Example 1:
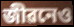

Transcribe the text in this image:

জীৱনেও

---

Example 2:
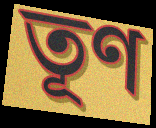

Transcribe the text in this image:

তূণ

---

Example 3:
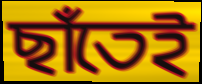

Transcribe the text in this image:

ছাঁতেই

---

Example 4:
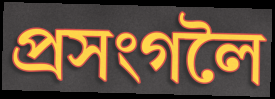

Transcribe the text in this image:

প্ৰসংগলৈ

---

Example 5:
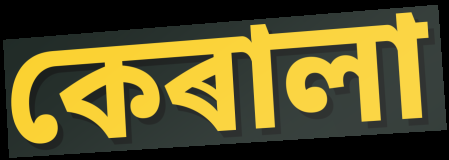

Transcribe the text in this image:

কেৰালা